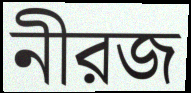
নীরজ